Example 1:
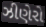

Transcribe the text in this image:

ઝીણેરો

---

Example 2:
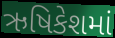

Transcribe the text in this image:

ઋષિકેશમાં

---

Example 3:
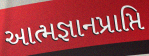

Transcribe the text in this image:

આત્મજ્ઞાનપ્રાપ્તિ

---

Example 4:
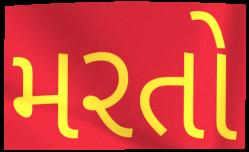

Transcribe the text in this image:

મરતો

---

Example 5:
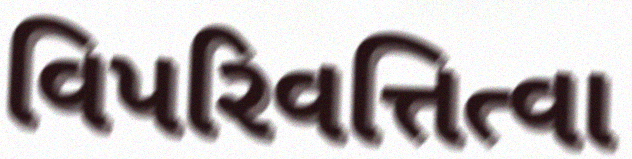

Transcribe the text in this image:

વિપરિવત્તિત્વા